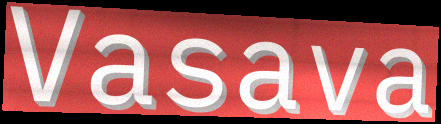
Vasava